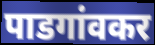
पाडगांवकर